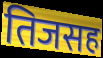
तिजसह